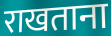
राखताना